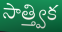
సాత్త్విక